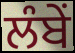
ਲੰਬੇਂ